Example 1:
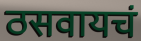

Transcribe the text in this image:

ठसवायचं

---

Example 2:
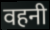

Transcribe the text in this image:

वहनी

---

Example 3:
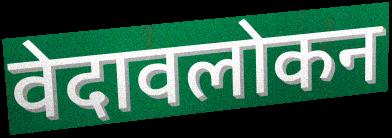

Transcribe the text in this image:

वेदावलोकन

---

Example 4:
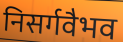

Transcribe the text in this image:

निसर्गवैभव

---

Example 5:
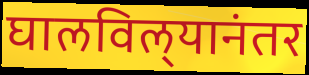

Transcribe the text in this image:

घालविल्यानंतर